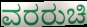
ವರರುಚಿ